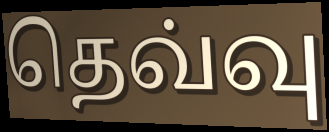
தெவ்வு